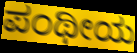
ಪಂಥೀಯ